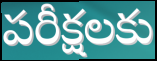
పరీక్షలకు